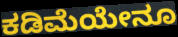
ಕಡಿಮೆಯೇನೂ